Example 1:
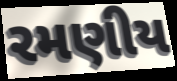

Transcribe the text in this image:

રમણીય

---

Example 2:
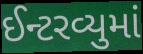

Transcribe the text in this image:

ઈન્ટરવ્યુમાં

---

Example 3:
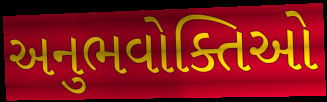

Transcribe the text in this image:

અનુભવોક્તિઓ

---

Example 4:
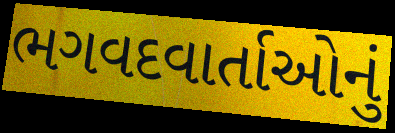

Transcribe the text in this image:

ભગવદવાર્તાઓનું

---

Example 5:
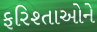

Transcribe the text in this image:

ફરિશ્તાઓને